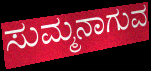
ಸುಮ್ಮನಾಗುವ